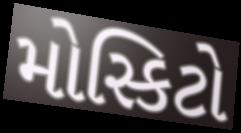
મોસ્કિટો